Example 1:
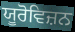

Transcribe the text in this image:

ਯੂਰੋਵਿਜ਼ਨ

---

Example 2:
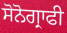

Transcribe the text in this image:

ਸੋਨੋਗ੍ਰਾਫੀ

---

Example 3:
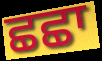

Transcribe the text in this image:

ਛਛਾ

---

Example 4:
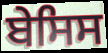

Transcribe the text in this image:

ਬੇਸਿਸ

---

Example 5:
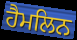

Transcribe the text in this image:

ਹੈਮਲਿਨ